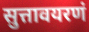
सुत्तावयरणं